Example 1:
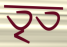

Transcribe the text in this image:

তৃত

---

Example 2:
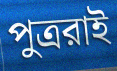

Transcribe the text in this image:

পুত্ররাই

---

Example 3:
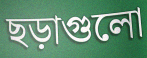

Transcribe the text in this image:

ছড়াগুলো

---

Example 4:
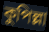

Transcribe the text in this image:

কুপিল্লা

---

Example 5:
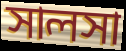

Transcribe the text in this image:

সালসা